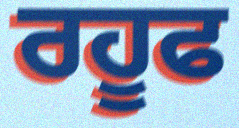
ਰਹੂਫ